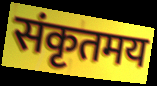
संकृतमय